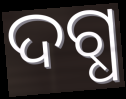
ଦଗ୍ଧ